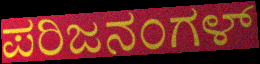
ಪರಿಜನಂಗಳ್